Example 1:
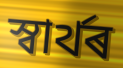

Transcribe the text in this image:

স্বাৰ্থৰ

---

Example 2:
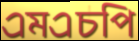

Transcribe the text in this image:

এমএচপি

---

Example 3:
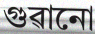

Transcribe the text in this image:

গুৱানো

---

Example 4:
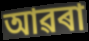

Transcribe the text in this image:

আৱৰা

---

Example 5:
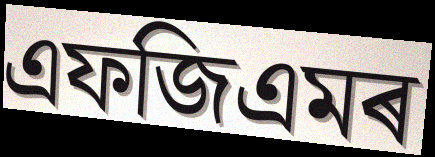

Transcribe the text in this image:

এফজিএমৰ